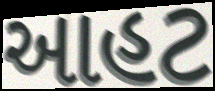
આહટ